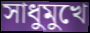
সাধুমুখে